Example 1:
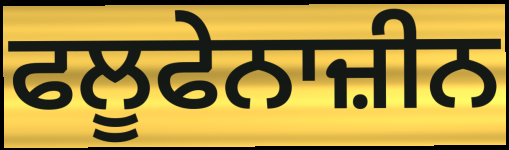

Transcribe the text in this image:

ਫਲੂਫੇਨਾਜ਼ੀਨ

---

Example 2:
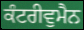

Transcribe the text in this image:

ਕੰਟਰੀਵੁਮੈਨ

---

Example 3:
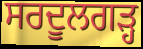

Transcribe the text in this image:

ਸਰਦੂਲਗੜ੍ਹ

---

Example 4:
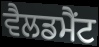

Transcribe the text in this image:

ਵੈਲਡਮੈਂਟ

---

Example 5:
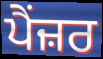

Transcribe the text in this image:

ਪੈਂਜ਼ਰ